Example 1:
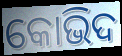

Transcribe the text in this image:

କୋଭିଦ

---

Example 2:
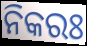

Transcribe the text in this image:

ନିକରଃ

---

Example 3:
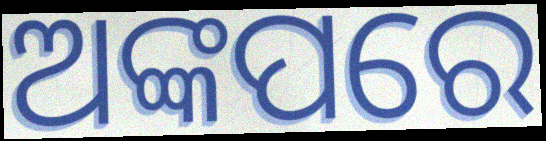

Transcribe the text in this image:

ଅଙ୍କପରେ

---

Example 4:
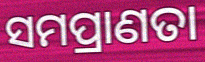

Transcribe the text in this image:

ସମପ୍ରାଣତା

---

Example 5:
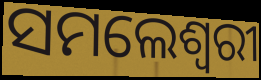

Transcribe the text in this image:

ସମଲେଶ୍ୱରୀ